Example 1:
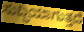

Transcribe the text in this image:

ಸುದ್ಧಿಯಾಗುತ್ತದೆ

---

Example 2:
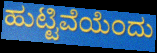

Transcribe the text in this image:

ಹುಟ್ಟಿವೆಯೆಂದು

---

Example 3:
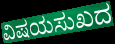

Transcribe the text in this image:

ವಿಷಯಸುಖದ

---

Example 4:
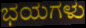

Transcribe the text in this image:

ಭಯಗಳು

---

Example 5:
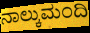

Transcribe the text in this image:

ನಾಲ್ಕುಮಂದಿ